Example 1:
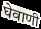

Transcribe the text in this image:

घेवाणी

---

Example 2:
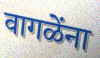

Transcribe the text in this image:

वागळेंना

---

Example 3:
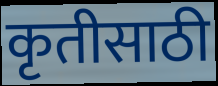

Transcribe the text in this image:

कृतीसाठी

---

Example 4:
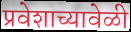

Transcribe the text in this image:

प्रवेशाच्यावेळी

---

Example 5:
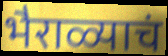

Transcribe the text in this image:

भैराळ्याचं